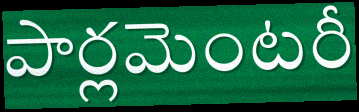
పార్లమెంటరీ